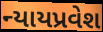
ન્યાયપ્રવેશ